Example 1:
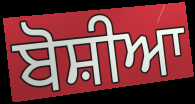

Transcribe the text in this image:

ਬੋਸ਼ੀਆ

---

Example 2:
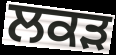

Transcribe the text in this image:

ਲਕੜ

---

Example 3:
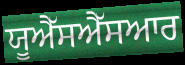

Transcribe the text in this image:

ਯੂਐੱਸਐੱਸਆਰ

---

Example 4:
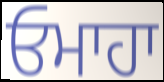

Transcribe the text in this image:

ਓਮਾਹਾ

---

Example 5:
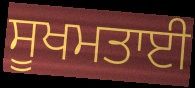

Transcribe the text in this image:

ਸੂਖਮਤਾਈ